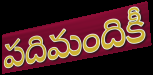
పదిమందికీ